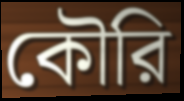
কৌরি